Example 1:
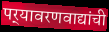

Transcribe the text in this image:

पर्यावरणवाद्यांची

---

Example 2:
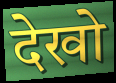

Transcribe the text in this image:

देखो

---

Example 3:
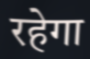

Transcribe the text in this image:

रहेगा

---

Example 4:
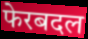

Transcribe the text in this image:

फेरबदल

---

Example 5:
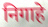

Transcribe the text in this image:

निगाहे